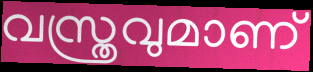
വസ്ത്രവുമാണ്